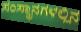
ಸಂಸ್ಥಾನಗಳಲ್ಲಿನ